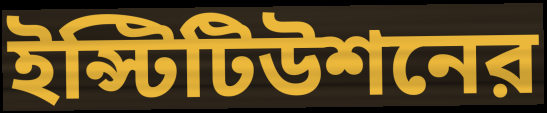
ইন্স্টিটিউশনের